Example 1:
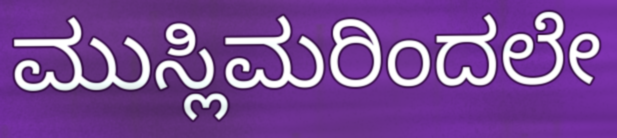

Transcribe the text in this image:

ಮುಸ್ಲಿಮರಿಂದಲೇ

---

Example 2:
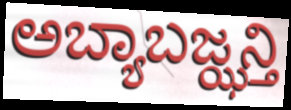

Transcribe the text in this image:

ಅಬ್ಯಾಬಜ್ಝನ್ತಿ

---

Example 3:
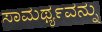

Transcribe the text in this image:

ಸಾಮರ್ಥ್ಯವನ್ನು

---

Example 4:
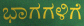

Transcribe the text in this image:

ಭಾಗಗಳಿಗೆ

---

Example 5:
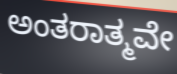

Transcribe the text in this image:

ಅಂತರಾತ್ಮವೇ